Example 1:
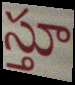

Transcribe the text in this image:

స్తూ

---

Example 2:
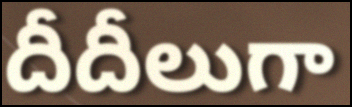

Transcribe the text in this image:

దీదీలుగా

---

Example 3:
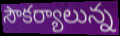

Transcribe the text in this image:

సౌకర్యాలున్న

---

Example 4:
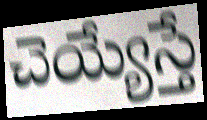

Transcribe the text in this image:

చెయ్యేస్తే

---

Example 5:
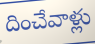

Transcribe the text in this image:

దించేవాళ్లు